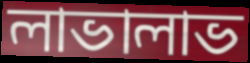
লাভালাভ